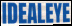
IDEALEYE